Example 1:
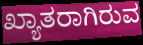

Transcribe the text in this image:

ಖ್ಯಾತರಾಗಿರುವ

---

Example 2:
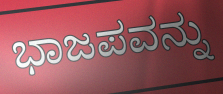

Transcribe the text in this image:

ಭಾಜಪವನ್ನು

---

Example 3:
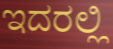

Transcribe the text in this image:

ಇದರಲ್ಲಿ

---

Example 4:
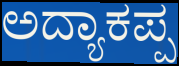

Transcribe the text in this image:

ಅದ್ಯಾಕಪ್ಪ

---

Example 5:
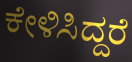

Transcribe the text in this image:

ಕೇಳಿಸಿದ್ದರೆ